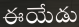
ఈయేడు